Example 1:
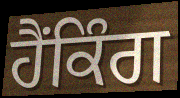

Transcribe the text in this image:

ਹੈਂਕਿੰਗ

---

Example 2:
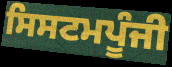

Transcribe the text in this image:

ਸਿਸਟਮਪੂੰਜੀ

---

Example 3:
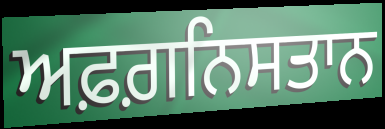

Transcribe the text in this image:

ਅਫ਼ਗ਼ਨਿਸਤਾਨ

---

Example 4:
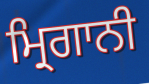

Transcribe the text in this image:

ਮ੍ਰਿਗਾਨੀ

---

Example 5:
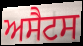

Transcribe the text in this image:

ਅਸੈਟਸ